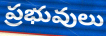
ప్రభువులు